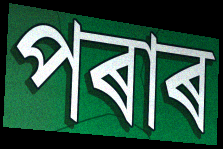
পৰাৰ